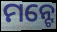
ମନ୍ଟେ